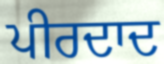
ਪੀਰਦਾਦ